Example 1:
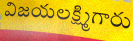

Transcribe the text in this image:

విజయలక్ష్మిగారు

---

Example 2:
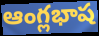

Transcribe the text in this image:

ఆంగ్లభాష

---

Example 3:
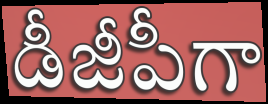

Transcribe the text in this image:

డీజీపీగా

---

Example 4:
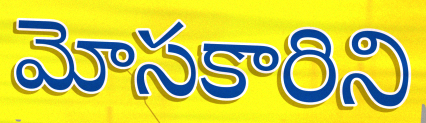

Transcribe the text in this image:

మోసకారిని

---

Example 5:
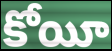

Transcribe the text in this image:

కోయీ